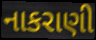
નાકરાણી